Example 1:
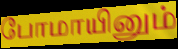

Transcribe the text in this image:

போமாயினும்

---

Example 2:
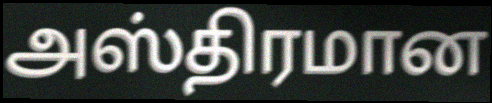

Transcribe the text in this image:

அஸ்திரமான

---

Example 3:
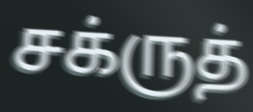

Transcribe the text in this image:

சக்ருத்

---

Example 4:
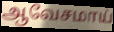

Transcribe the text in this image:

ஆவேசமாய்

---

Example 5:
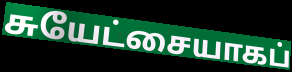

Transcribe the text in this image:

சுயேட்சையாகப்